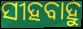
ସୀହବାହୁ